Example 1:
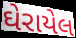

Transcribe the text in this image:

ઘેરાયેલ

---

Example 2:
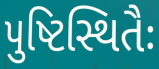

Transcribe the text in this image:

પુષ્ટિસ્થિતૈઃ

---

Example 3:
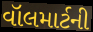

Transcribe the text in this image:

વૉલમાર્ટની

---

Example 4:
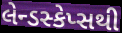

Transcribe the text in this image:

લેન્ડસ્કેપ્સથી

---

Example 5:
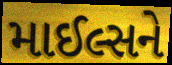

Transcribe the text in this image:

માઈલ્સને